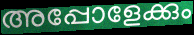
അപ്പോളേക്കും